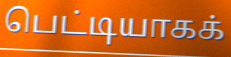
பெட்டியாகக்